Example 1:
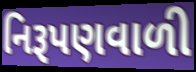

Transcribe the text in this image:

નિરૂપણવાળી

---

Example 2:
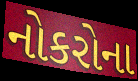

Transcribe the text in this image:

નોકરોના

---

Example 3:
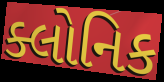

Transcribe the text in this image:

ક્લોનિક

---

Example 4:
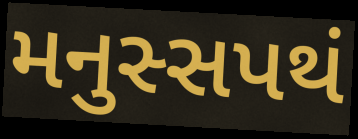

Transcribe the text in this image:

મનુસ્સપથં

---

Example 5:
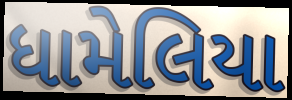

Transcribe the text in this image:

ધામેલિયા